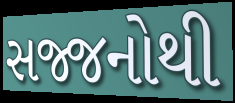
સજ્જનોથી